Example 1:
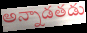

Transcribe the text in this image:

అన్నాడతడు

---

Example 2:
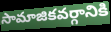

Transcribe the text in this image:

సామాజికవర్గానికి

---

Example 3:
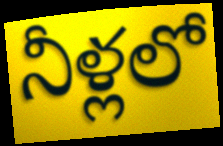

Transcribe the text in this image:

నీళ్లలో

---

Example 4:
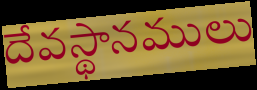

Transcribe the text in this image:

దేవస్థానములు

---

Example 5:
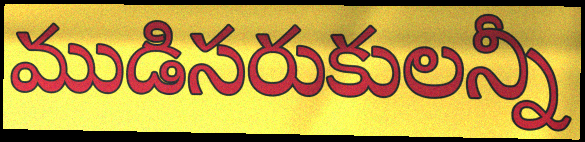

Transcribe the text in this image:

ముడిసరుకులన్నీ